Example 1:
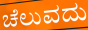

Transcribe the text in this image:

ಚೆಲುವದು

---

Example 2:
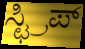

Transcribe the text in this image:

ಸ್ಟ್ರಿಪ್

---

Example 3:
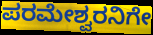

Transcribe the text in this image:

ಪರಮೇಶ್ವರನಿಗೇ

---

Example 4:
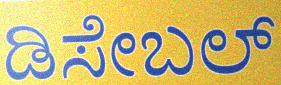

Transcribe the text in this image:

ಡಿಸೇಬಲ್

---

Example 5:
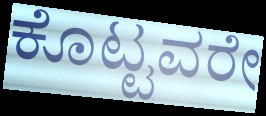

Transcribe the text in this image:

ಕೊಟ್ಟವರೇ